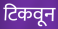
टिकवून